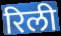
रिली